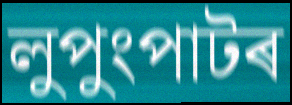
লুপুংপাটৰ